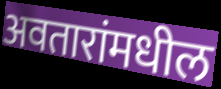
अवतारांमधील